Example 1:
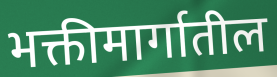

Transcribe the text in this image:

भक्तीमार्गातील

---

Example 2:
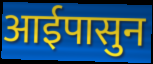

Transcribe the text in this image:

आईपासुन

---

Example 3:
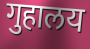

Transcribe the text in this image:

गुहालय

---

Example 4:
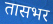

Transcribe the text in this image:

तासभर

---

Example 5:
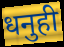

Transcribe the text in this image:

धनुही